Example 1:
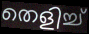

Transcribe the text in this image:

തെളിച്ച്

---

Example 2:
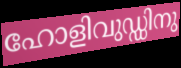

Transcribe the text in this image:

ഹോളിവുഡ്ഡിനു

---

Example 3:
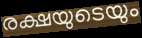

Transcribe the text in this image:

രക്ഷയുടെയും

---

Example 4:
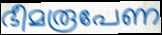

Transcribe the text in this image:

ഭീമരൂപേണ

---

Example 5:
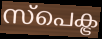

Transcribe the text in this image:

സ്‌പെക്ട്ര